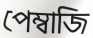
পেম্বাজি